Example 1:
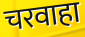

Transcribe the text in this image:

चरवाहा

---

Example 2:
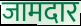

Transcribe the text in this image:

जामदार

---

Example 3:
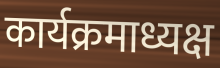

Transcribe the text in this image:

कार्यक्रमाध्यक्ष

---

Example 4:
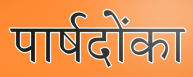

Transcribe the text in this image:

पार्षदोंका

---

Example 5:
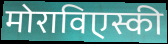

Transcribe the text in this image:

मोराविएस्की